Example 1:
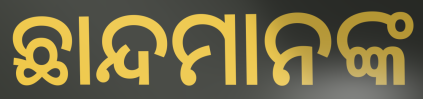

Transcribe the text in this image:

ଛାନ୍ଦମାନଙ୍କ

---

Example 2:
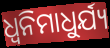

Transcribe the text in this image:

ଧ୍ୱନିମାଧୁର୍ଯ୍ୟ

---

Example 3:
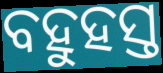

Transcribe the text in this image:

ବହୁହସ୍ତ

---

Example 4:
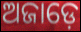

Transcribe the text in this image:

ଅଜାଡ଼େ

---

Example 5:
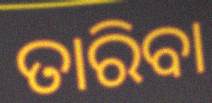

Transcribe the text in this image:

ତାରିବା